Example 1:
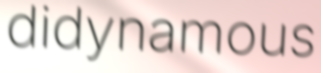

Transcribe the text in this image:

didynamous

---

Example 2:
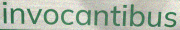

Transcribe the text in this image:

invocantibus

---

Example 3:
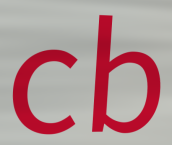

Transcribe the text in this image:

cb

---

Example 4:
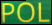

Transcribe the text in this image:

POL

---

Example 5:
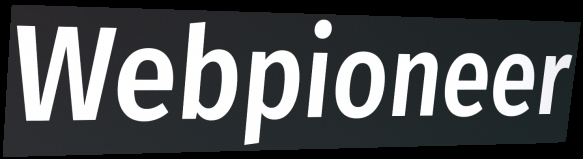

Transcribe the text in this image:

Webpioneer